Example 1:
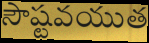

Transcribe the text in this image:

సౌష్టవయుత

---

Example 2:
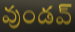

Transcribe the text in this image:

వుండవ్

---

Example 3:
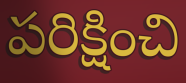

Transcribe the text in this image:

పరిక్షించి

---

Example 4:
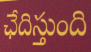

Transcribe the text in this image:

ఛేదిస్తుంది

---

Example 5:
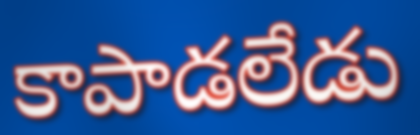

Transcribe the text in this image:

కాపాడలేడు